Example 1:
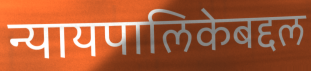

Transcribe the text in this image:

न्यायपालिकेबद्दल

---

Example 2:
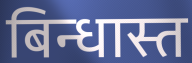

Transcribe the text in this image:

बिन्धास्त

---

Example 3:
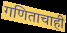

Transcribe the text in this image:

गणिताचाही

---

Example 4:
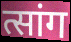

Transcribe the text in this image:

त्सांग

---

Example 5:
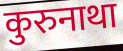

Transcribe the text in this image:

कुरुनाथा